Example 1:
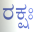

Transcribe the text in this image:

ರಕ್ಷಃ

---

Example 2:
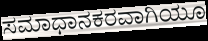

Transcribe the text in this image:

ಸಮಾಧಾನಕರವಾಗಿಯೂ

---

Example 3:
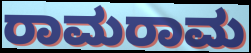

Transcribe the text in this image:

ರಾಮರಾಮ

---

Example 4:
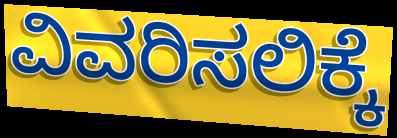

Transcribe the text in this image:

ವಿವರಿಸಲಿಕ್ಕೆ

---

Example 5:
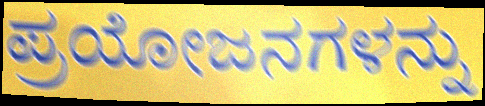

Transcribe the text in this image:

ಪ್ರಯೋಜನಗಳನ್ನು